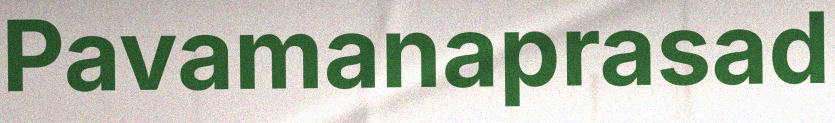
Pavamanaprasad